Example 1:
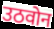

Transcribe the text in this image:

उठवोन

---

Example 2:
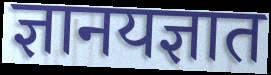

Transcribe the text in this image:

ज्ञानयज्ञात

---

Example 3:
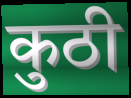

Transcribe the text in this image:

कुठी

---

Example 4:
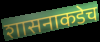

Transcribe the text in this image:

शासनाकडेच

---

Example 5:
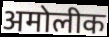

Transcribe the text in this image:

अमोलीक